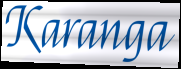
Karanga